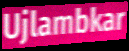
Ujlambkar